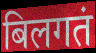
बिलगतं